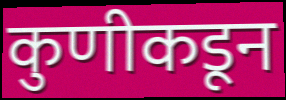
कुणीकडून